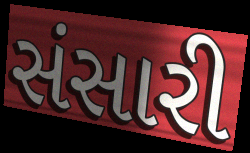
સંસારી